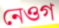
নেওগ